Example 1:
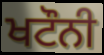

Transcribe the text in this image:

ਖਟੌਨੀ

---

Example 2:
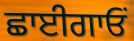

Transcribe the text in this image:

ਛਾਈਗਾਓਂ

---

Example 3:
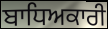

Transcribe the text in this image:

ਬਾਧਿਅਕਾਰੀ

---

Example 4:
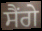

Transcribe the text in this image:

ਸੈਂਗੇ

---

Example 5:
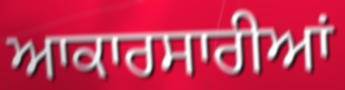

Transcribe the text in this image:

ਆਕਾਰਸਾਰੀਆਂ